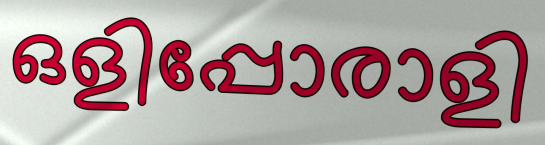
ഒളിപ്പോരാളി